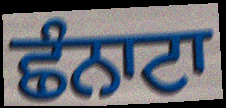
ਛੰਨਾਟਾ